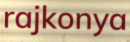
rajkonya